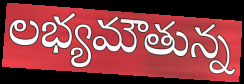
లభ్యమౌతున్న